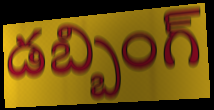
డబ్బింగ్